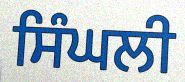
ਸਿੰਘਲੀ